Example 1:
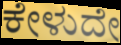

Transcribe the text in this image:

ಕೇಳುದೇ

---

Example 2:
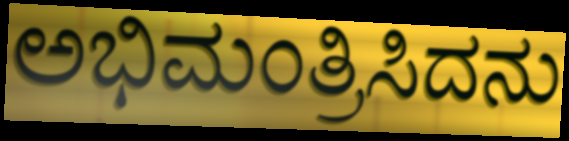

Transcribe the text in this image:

ಅಭಿಮಂತ್ರಿಸಿದನು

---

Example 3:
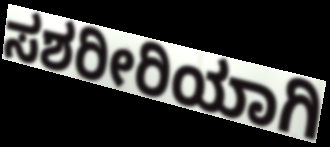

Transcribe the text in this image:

ಸಶರೀರಿಯಾಗಿ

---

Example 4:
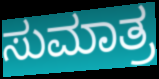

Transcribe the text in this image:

ಸುಮಾತ್ರ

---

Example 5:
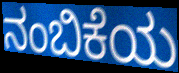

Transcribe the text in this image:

ನಂಬಿಕೆಯ